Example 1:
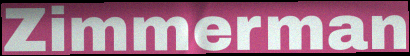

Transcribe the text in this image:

Zimmerman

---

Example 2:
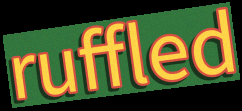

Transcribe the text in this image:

ruffled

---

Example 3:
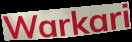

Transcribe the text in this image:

Warkari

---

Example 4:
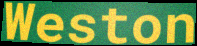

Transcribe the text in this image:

Weston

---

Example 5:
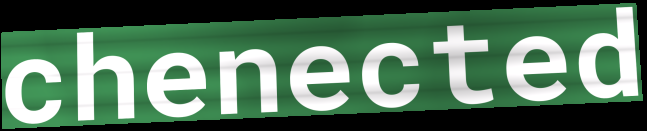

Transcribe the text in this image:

chenected